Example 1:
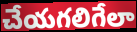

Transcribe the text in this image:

చేయగలిగేలా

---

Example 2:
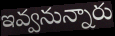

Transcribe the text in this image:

ఇవ్వనున్నారు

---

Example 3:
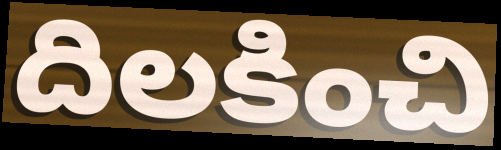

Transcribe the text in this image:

దిలకించి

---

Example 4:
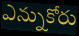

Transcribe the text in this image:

ఎన్నుకోరు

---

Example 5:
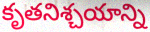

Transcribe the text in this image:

కృతనిశ్చయాన్ని